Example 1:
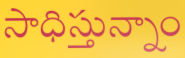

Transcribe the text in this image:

సాధిస్తున్నాం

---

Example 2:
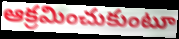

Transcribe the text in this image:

ఆక్రమించుకుంటూ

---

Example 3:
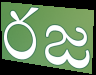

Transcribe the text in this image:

రజ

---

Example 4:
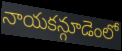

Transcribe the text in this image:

నాయకన్గూడెంలో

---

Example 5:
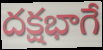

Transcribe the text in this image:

దక్షభాగే